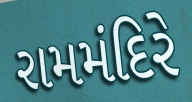
રામમંદિરે